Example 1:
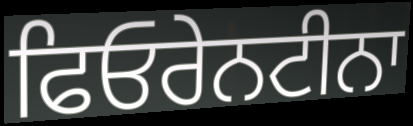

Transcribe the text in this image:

ਫਿਓਰੇਨਟੀਨਾ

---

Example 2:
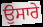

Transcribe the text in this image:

ਉਸਾਰੇ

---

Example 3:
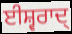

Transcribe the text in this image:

ਈਸ਼੍ਵਰਾਦ੍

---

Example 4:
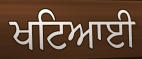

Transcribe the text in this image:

ਖਟਿਆਈ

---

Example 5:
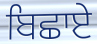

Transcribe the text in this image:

ਬਿਛਾਏ